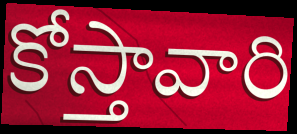
కోస్తావారి